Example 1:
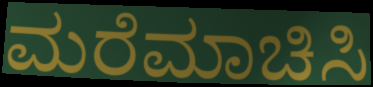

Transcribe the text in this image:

ಮರೆಮಾಚಿಸಿ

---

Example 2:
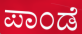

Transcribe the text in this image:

ಪಾಂಡೆ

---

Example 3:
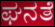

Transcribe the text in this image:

ಘನತೆ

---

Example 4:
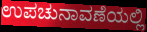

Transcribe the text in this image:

ಉಪಚುನಾವಣೆಯಲ್ಲಿ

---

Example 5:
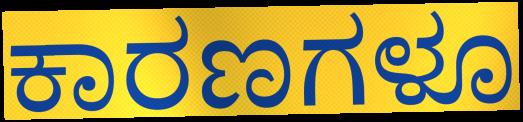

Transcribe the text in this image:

ಕಾರಣಗಳೂ